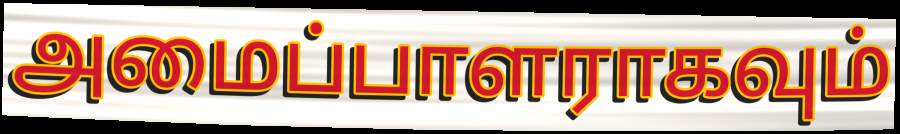
அமைப்பாளராகவும்